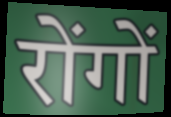
रोंगों